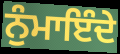
ਨੁੰਮਾਇੰਦੇ